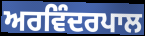
ਅਰਵਿੰਦਰਪਾਲ